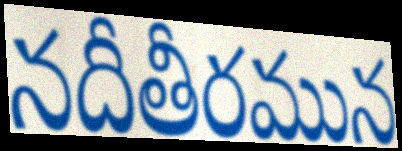
నదీతీరమున